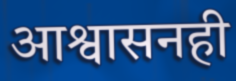
आश्वासनही